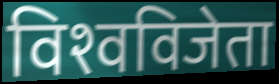
विश्वविजेता